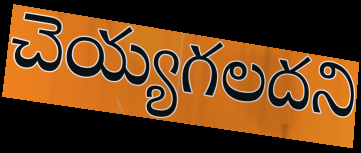
చెయ్యగలదని